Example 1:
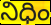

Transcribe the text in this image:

నిధిం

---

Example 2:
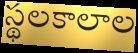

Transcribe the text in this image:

స్థలకాలాల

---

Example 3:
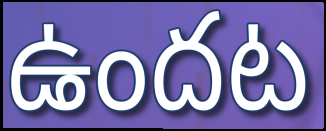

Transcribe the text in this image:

ఉందట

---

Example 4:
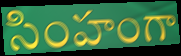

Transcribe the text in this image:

సింహంగా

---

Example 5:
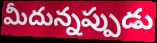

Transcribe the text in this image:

మీదున్నప్పుడు